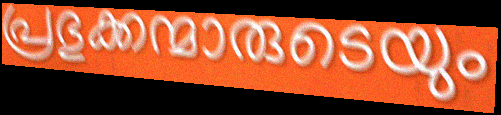
പ്രഭുക്കന്മാരുടെയും